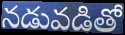
నడువడితో